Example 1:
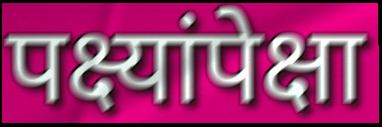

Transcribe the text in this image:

पक्ष्यांपेक्षा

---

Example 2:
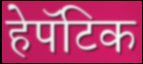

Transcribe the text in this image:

हेपॅटिक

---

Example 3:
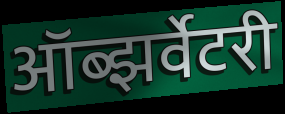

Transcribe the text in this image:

ऑब्झर्वेटरी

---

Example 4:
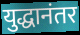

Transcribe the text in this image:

युद्धानंतर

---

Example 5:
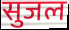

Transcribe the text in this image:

सुजल